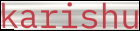
karishu